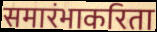
समारंभाकरिता